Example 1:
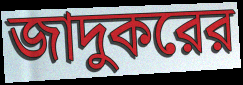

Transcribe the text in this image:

জাদুকরের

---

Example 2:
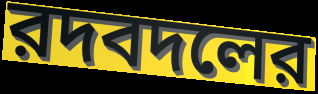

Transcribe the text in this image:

রদবদলের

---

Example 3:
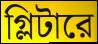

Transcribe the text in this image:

গ্লিটারে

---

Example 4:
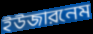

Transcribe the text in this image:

ইউজারনেম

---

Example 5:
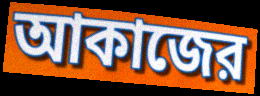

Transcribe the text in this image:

আকাজের